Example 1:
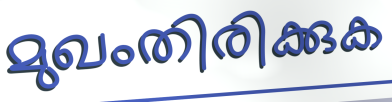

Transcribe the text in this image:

മുഖംതിരിക്കുക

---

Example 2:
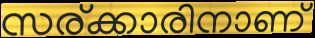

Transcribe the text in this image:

സര്ക്കാരിനാണ്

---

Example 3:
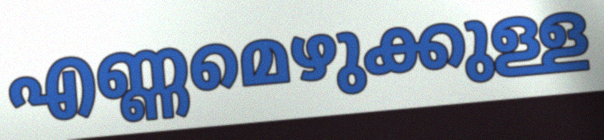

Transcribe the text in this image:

എണ്ണമെഴുക്കുള്ള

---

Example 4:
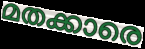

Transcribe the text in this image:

മതക്കാരെ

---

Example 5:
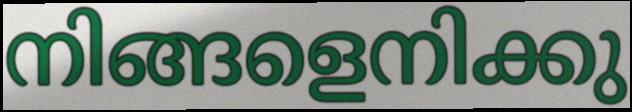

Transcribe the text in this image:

നിങ്ങളെനിക്കു